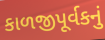
કાળજીપૂર્વકનું